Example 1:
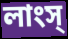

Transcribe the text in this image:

লাংস্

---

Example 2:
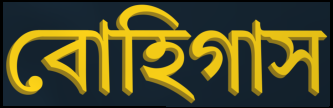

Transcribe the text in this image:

বোহিগাস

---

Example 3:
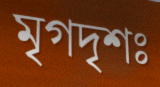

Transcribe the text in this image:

মৃগদৃশঃ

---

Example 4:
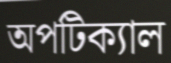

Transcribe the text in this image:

অপটিক্যাল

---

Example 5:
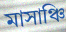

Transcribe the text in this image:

মাসাঞ্চি